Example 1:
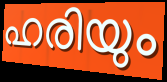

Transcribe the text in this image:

ഹരിയും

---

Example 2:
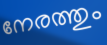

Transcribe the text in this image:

നേരത്തും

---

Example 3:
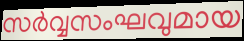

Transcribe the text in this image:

സർവ്വസംഘവുമായ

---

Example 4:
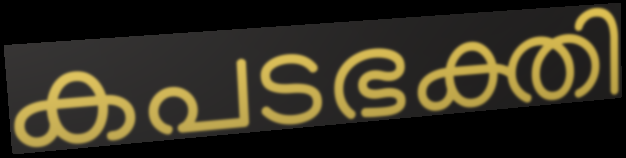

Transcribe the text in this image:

കപടഭക്തി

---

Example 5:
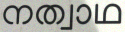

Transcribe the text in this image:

നത്വാഥ